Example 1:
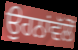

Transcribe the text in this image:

ਉਹਨਾਂਵੱਲੋਂ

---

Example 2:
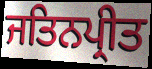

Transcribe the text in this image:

ਜਤਿਨਪ੍ਰੀਤ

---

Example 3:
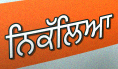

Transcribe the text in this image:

ਨਿਕੱਲਿਆ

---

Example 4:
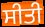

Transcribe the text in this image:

ਸੀਤੀ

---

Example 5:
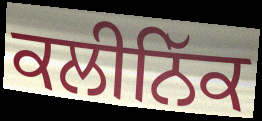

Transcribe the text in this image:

ਕਲੀਨਿੱਕ